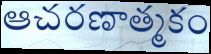
ఆచరణాత్మకం